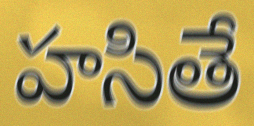
హసితే